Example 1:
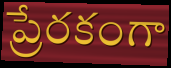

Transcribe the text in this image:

ప్రేరకంగా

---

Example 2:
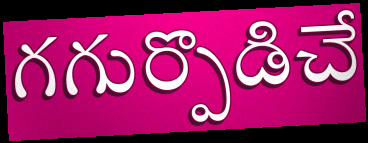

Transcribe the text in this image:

గగుర్పొడిచే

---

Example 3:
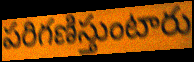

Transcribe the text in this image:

పరిగణిస్తుంటారు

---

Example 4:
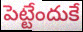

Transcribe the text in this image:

పెట్టేందుకే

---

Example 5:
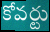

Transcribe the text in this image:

కోవర్టు